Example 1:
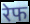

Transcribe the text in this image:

रेफ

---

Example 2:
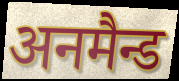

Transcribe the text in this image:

अनमैन्ड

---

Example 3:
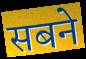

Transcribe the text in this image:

सबने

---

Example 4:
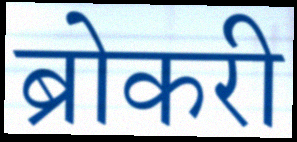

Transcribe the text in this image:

ब्रोकरी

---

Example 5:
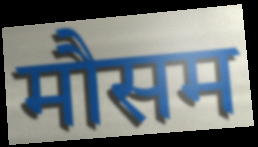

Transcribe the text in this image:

मौसम